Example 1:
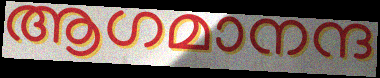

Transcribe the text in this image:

ആഗമാനന്ദ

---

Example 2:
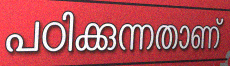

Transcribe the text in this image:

പഠിക്കുന്നതാണ്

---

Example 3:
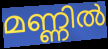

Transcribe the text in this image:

മണ്ണിൽ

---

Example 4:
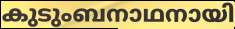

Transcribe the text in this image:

കുടുംബനാഥനായി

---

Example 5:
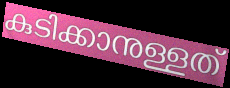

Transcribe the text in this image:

കുടിക്കാനുള്ളത്